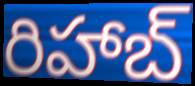
రిహాబ్